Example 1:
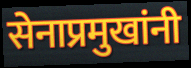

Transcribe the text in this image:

सेनाप्रमुखांनी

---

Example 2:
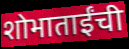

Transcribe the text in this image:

शोभाताईंची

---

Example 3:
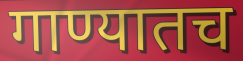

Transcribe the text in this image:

गाण्यातच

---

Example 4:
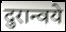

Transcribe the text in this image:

दुरान्वये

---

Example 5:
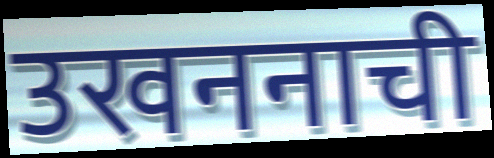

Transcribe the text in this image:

उखननाची